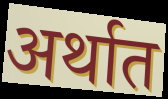
अर्थात